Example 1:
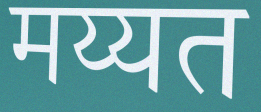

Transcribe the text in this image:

मय्यत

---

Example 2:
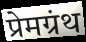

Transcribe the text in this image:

प्रेमग्रंथ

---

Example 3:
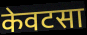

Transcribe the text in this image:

केवटसा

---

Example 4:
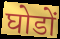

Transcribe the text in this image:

घोडों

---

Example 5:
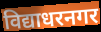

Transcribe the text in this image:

विद्याधरनगर